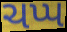
ચપ્પ